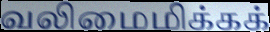
வலிமைமிக்கக்